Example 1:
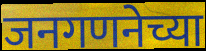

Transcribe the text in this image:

जनगणनेच्या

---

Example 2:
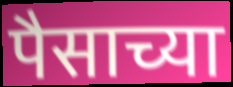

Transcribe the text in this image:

पैसाच्या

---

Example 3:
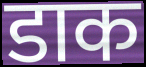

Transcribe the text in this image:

डाक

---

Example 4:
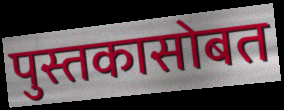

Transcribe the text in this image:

पुस्तकासोबत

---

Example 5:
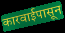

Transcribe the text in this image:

कारवाईपासून